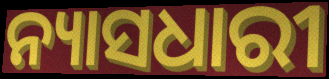
ନ୍ୟାସଧାରୀ